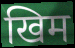
खिम